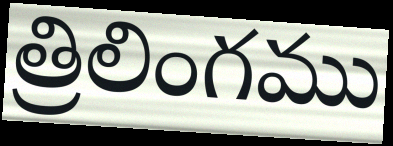
త్రిలింగము